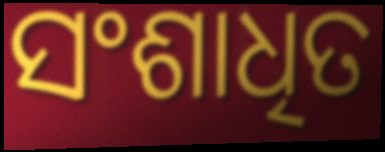
ସଂଶାଧିତ